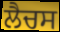
ਲੈਚਸ